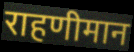
राहणीमान